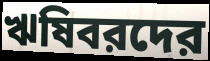
ঋষিবরদের